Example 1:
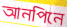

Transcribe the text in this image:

আনপিনে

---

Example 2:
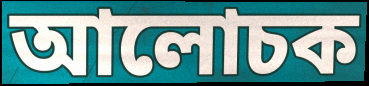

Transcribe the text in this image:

আলোচক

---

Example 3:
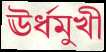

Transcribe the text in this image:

ঊৰ্ধমুখী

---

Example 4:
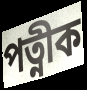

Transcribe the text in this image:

পত্নীক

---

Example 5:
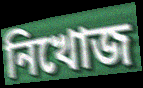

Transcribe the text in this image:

নিখোজ